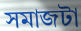
সমাজটা